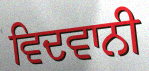
ਵਿਦਵਾਨੀ